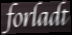
forladt